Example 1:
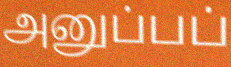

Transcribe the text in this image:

அனுப்பப்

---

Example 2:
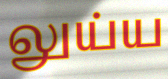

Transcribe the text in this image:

லுய்ய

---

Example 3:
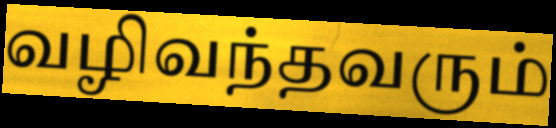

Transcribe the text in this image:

வழிவந்தவரும்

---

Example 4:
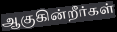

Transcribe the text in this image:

ஆகுகின்றீர்கள்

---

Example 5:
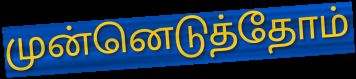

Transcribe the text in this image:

முன்னெடுத்தோம்